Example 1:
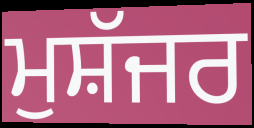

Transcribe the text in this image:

ਮੁਸ਼ੱਜਰ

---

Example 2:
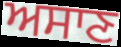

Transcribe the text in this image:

ਅਸਾਣ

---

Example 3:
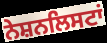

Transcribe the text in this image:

ਨੇਸ਼ਨਲਿਸਟਾਂ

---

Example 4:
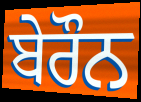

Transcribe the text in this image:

ਬੇਰੌਨ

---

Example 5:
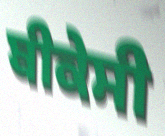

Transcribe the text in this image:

ਬੀਕੇਸੀ